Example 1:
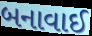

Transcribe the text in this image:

બનાવાઈ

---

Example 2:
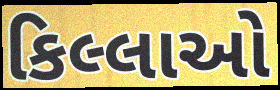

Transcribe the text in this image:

કિલ્લાઓ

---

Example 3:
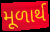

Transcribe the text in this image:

મૂળાર્થ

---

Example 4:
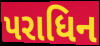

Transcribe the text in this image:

પરાધિન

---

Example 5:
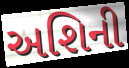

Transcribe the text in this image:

અશિની